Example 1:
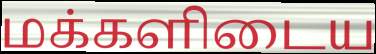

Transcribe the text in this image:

மக்களிடைய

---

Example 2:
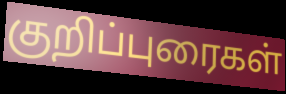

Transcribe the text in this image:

குறிப்புரைகள்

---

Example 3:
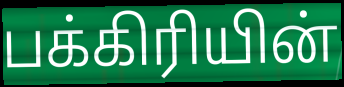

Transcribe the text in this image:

பக்கிரியின்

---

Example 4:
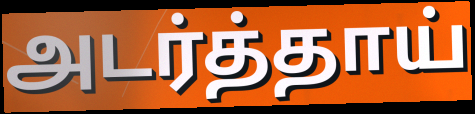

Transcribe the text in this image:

அடர்த்தாய்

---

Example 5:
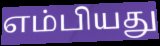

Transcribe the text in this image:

எம்பியது